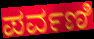
ಪರ್ವಣಿ